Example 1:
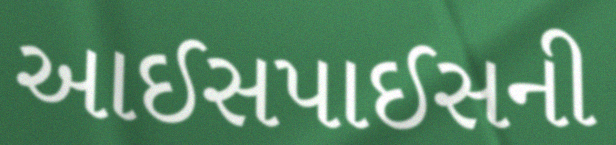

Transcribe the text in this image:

આઈસપાઈસની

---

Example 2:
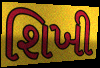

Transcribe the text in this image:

શિખી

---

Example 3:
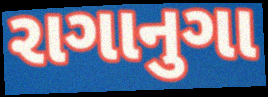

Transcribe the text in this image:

રાગાનુગા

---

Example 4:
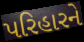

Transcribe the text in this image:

પરિહારને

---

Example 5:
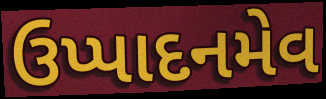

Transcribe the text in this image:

ઉપ્પાદનમેવ